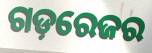
ଗଡ଼ରେଜର